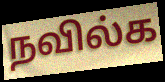
நவில்க